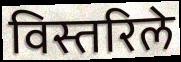
विस्तरिले